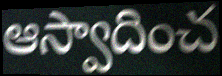
ఆస్వాదించ